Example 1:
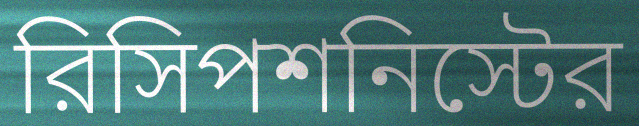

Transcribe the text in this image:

রিসিপশনিস্টের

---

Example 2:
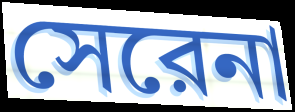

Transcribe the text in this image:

সেরেনা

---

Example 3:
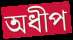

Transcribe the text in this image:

অধীপ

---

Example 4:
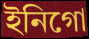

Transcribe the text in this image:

ইনিগো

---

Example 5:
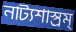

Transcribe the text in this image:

নাট্যশাস্ত্রম্